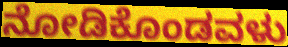
ನೋಡಿಕೊಂಡವಳು